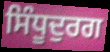
ਸਿੰਧੂਦੁਰਗ